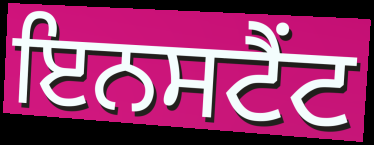
ਇਨਸਟੈਂਟ